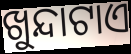
ଖୁନ୍ଦାଟାଏ